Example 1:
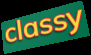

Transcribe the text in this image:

classy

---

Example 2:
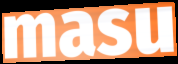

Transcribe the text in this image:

masu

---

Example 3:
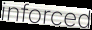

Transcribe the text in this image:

inforced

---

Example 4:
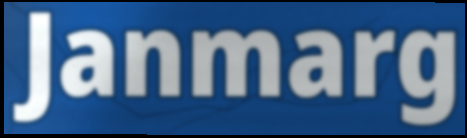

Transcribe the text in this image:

Janmarg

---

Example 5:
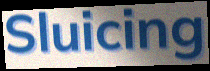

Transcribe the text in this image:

Sluicing